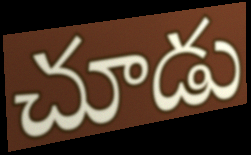
చూడు